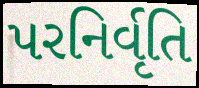
પરનિર્વૃતિ